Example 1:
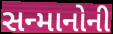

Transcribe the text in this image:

સન્માનોની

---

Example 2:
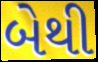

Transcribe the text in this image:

બેથી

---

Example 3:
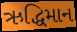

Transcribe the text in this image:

ઋદ્ધિમાન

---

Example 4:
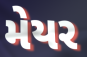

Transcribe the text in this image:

મેયર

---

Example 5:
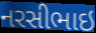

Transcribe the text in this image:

નરસીભાઇ